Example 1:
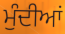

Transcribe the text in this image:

ਮੁੰਦੀਆਂ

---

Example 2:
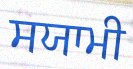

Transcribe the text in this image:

ਸਯਾਮੀ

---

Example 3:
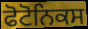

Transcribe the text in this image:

ਫੋਟੋਨਿਕਸ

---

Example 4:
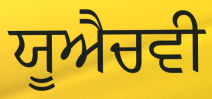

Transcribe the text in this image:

ਯੂਐਚਵੀ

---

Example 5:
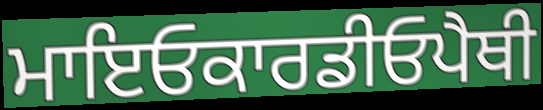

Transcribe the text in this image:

ਮਾਇਓਕਾਰਡੀਓਪੈਥੀ